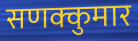
सणक्कुमार